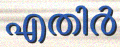
എതിർ